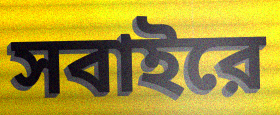
সবাইরে